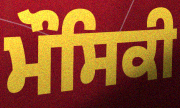
ਮੌਸਿਕੀ